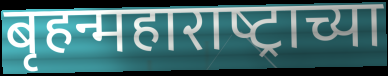
बृहन्महाराष्ट्राच्या